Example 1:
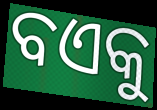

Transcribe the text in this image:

ବଏକୁ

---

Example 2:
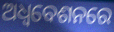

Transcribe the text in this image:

ଅଧ୍ଵବେଶନରେ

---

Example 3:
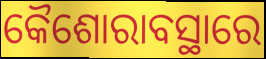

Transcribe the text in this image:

କୈଶୋରାବସ୍ଥାରେ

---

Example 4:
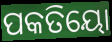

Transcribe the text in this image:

ପକତିୟୋ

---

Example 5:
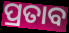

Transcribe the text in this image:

ପ୍ରତାବ